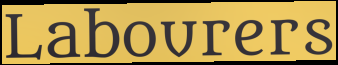
Labourers